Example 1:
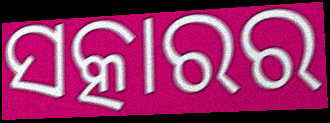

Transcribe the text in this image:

ସତ୍କାରର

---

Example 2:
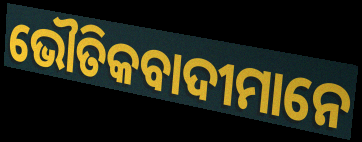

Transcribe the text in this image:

ଭୌତିକବାଦୀମାନେ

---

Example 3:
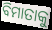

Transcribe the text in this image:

ବିମାତାକୁ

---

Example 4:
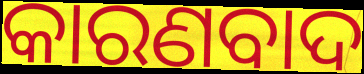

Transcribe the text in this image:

କାରଣବାଦ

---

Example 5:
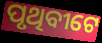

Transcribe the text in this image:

ପୃଥିବୀଟେ